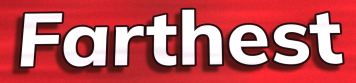
Farthest